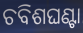
ଚବିଶଘଣ୍ଟା